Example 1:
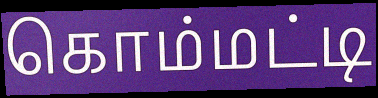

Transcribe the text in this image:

கொம்மட்டி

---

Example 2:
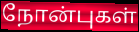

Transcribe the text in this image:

நோன்புகள்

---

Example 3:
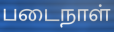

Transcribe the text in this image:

படைநாள்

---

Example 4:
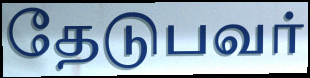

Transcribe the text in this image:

தேடுபவர்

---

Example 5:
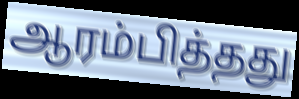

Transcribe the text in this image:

ஆரம்பித்தது